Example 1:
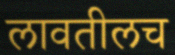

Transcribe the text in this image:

लावतीलच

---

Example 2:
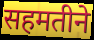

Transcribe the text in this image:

सहमतीने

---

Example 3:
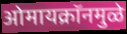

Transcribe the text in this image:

ओमायक्रॉनमुळे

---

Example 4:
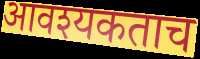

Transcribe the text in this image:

आवश्यकताच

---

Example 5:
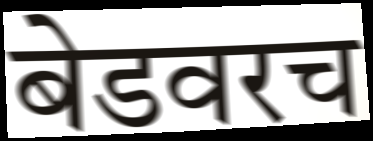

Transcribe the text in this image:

बेडवरच